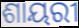
ଶାୟରୀ